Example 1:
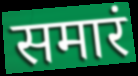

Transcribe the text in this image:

समारं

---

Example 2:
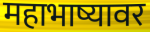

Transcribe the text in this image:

महाभाष्यावर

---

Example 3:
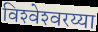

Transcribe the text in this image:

विश्वेश्वरय्या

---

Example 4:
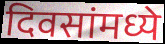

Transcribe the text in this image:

दिवसांमध्ये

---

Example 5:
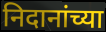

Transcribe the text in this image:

निदानांच्या